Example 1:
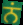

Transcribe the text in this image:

ਨਂ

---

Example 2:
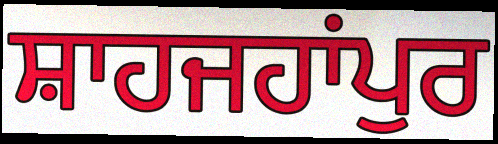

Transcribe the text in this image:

ਸ਼ਾਹਜਹਾਂਪੁਰ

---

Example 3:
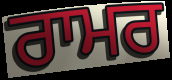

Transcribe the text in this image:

ਰਾਮਰ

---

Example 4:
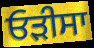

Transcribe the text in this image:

ਓੜੀਸਾ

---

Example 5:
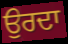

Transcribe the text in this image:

ਉਰਦਾ